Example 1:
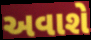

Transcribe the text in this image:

અવાશે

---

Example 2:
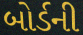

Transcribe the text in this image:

બોર્ડની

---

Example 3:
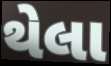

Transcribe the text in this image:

થેલા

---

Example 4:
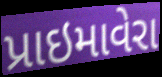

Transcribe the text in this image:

પ્રાઇમાવેરા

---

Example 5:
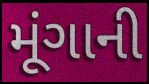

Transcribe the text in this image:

મૂંગાની